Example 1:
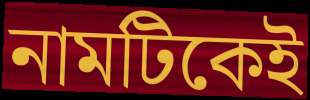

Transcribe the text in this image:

নামটিকেই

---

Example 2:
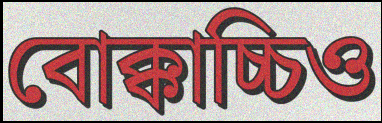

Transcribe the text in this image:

বোক্কাচ্চিও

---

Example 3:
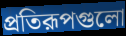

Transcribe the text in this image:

প্রতিরূপগুলো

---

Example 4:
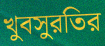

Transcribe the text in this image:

খুবসুরতির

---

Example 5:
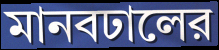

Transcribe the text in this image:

মানবঢালের